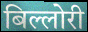
बिल्लोरी